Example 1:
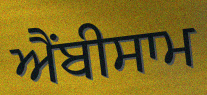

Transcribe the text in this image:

ਐਂਬੀਸਾਮ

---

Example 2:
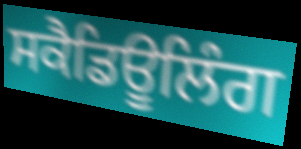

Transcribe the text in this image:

ਸਕੈਡਿਊਲਿੰਗ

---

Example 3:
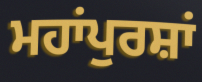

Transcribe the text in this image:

ਮਹਾਂਪੁਰਸ਼ਾਂ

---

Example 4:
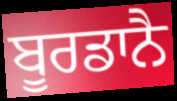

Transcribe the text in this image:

ਬੂਰਡਾਨੈ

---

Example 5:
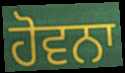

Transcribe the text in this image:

ਹੋਵਨਾ